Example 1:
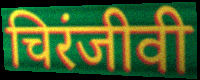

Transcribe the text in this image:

चिरंजीवी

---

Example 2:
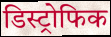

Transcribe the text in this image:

डिस्ट्रोफिक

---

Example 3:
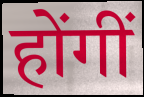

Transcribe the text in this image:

होंगीं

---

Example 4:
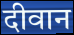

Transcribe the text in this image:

दीवान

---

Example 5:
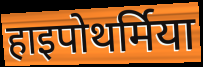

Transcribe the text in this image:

हाइपोथर्मिया